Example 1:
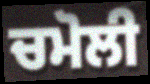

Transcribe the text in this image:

ਚਮੋਲੀ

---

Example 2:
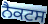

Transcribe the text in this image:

ਨੈਕਟਸ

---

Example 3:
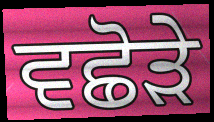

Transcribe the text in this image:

ਵਛੋੜੇ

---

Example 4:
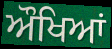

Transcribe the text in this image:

ਔਖਿਆਂ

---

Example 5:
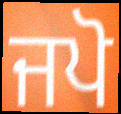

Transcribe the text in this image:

ਜਪੋ